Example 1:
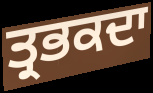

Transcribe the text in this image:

ਤ੍ਰਭਕਦਾ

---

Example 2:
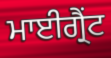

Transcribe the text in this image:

ਮਾਈਗ੍ਰੈਂਟ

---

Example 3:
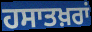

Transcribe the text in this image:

ਹਸਾਤਖ਼ਰਾਂ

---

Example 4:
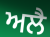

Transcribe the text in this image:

ਅਲੈ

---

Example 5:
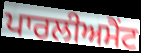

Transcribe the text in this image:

ਪਾਰਲੀਅਮੈਂਟ